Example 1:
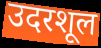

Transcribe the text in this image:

उदरशूल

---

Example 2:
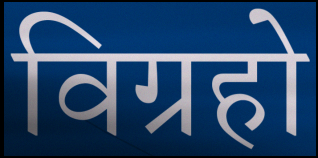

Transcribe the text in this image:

विग्रहो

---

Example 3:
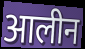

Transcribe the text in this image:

आलीन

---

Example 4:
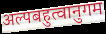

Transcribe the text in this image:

अल्पबहुत्वानुगम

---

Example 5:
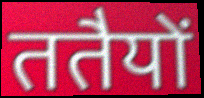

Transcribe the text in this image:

ततैयों